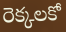
రెక్కలకో